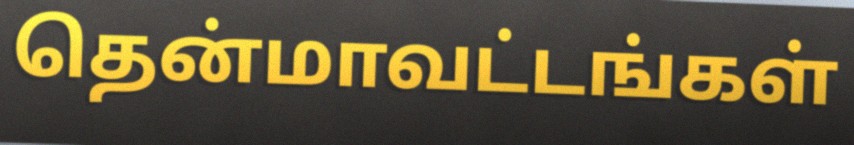
தென்மாவட்டங்கள்